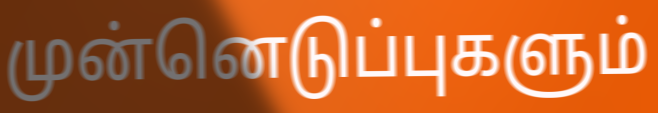
முன்னெடுப்புகளும்